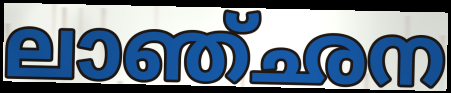
ലാഞ്ഛന